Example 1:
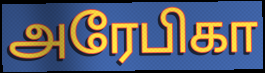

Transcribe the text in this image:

அரேபிகா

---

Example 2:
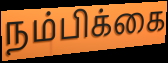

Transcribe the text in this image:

நம்பிக்கை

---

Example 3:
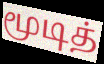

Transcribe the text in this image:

மூடித்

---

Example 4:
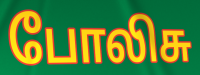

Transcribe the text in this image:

போலிசு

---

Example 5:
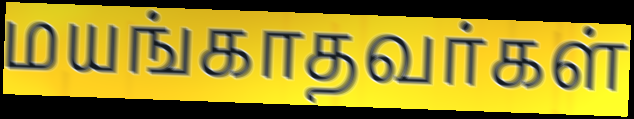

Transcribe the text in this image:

மயங்காதவர்கள்